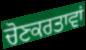
ਚੋਣਕਰਤਾਵਾਂ